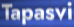
Tapasvi